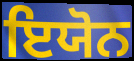
ਇਯੋਨ